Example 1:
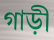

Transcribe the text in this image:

গাড়ী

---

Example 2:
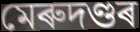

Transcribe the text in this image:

মেৰুদণ্ডৰ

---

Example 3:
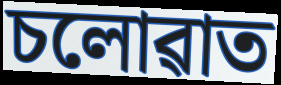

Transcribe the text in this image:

চলোৱাত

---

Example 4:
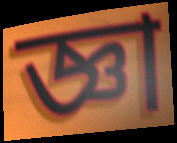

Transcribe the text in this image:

জ্ঞা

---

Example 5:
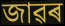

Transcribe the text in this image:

জাৱৰ